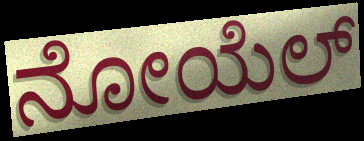
ನೋಯೆಲ್